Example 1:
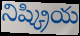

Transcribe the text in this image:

నిష్క్రియ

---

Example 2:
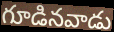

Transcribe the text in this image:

గూడినవాడు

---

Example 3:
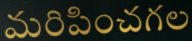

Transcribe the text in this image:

మరిపించగల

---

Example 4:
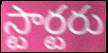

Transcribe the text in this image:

స్టార్టరు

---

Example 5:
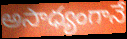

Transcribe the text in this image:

అసాధ్యంగానే